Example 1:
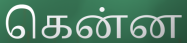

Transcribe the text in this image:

கென்ன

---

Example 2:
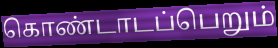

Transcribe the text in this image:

கொண்டாடப்பெறும்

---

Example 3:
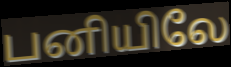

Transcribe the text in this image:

பனியிலே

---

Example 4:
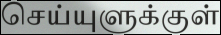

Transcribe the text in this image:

செய்யுளுக்குள்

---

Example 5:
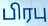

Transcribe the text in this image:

பிரபு